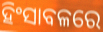
ହିଂସାବଳରେ